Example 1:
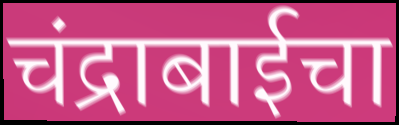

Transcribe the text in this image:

चंद्राबाईचा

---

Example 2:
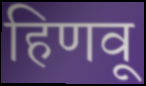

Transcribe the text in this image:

हिणवू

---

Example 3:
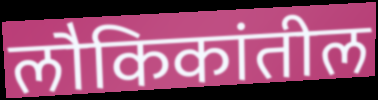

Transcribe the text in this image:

लौकिकांतील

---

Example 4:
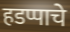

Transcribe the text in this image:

हडप्पाचे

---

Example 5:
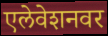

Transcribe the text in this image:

एलेवेशनवर